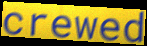
crewed